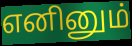
எனினும்